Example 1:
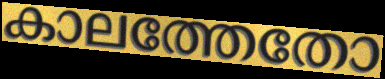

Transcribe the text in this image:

കാലത്തേതോ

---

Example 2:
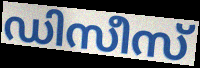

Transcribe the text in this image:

ഡിസീസ്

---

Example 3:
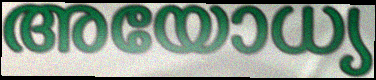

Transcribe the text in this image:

അയോധ്യ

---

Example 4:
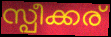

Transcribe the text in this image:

സ്പീക്കര്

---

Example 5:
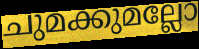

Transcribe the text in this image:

ചുമക്കുമല്ലോ